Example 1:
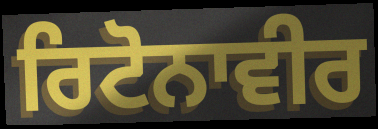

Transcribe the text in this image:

ਰਿਟੋਨਾਵੀਰ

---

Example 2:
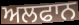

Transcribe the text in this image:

ਅਲਫਾਨ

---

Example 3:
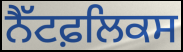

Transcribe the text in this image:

ਨੈੱਟਫ਼ਲਿਕਸ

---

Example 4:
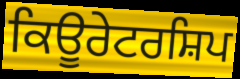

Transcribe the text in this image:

ਕਿਊਰੇਟਰਸ਼ਿਪ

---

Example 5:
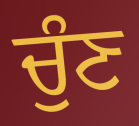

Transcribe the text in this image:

ਚੁੰਣ